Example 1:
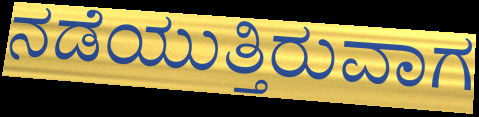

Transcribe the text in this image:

ನಡೆಯುತ್ತಿರುವಾಗ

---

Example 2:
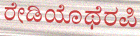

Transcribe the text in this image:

ರೇಡಿಯೊಥೆರಪಿ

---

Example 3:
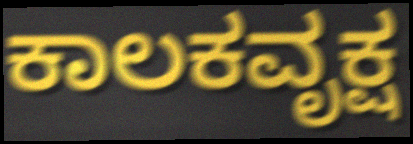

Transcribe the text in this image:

ಕಾಲಕವೃಕ್ಷ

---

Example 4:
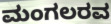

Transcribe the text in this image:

ಮಂಗಲರವ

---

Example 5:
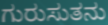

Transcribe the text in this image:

ಗುರುಸುತನು